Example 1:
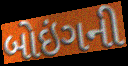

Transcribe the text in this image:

બોઇંગની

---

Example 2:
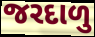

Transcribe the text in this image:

જરદાળુ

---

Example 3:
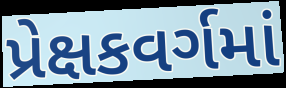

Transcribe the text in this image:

પ્રેક્ષકવર્ગમાં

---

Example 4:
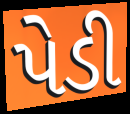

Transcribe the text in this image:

પેડી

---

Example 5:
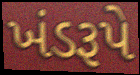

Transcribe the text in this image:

ખંડરૂપે